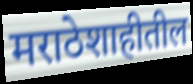
मराठेशाहीतील